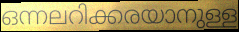
ഒന്നലറിക്കരയാനുള്ള